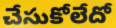
చేసుకోలేదో